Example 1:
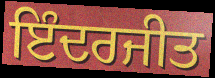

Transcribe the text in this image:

ਇੰਦਰਜੀਤ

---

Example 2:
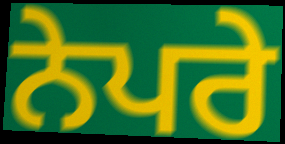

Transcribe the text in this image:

ਨੇਪਰੇ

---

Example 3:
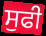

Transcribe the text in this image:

ਸੁਫੀ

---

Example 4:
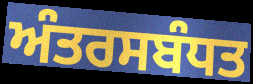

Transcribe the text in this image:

ਅੰਤਰਸਬੰਧਤ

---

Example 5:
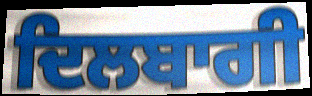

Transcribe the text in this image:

ਦਿਲਬਾਗੀ